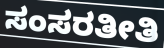
ಸಂಸರತೀತಿ